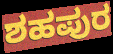
ಶಹಪುರ